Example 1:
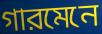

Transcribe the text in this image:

গারমেনে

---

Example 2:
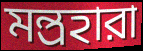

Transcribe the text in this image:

মন্ত্রহারা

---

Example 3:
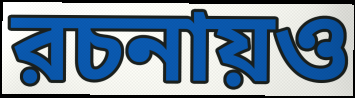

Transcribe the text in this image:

রচনায়ও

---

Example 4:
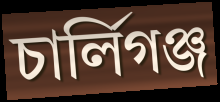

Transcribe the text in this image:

চার্লিগঞ্জ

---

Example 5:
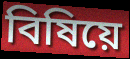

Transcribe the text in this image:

বিষিয়ে